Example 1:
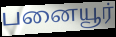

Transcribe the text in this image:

பனையூர்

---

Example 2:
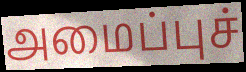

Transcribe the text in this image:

அமைப்புச்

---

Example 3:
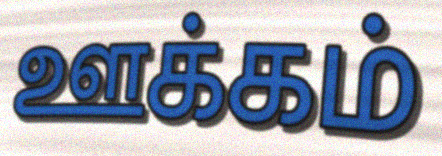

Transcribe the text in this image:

ஊக்கம்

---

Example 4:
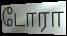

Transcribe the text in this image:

டோரா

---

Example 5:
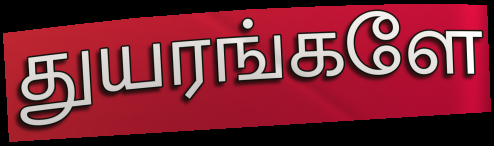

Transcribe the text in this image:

துயரங்களே